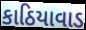
કાઠિયાવાડ